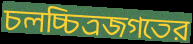
চলচ্চিত্রজগতের